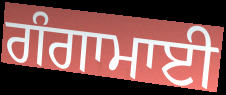
ਗੰਗਾਮਾਈ